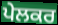
ਪੇਲਕਰ